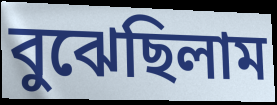
বুঝেছিলাম